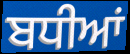
ਬਧੀਆਂ